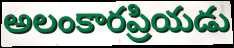
అలంకారప్రియడు